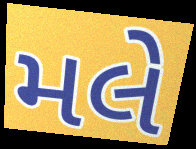
મલે